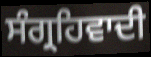
ਸੰਗ੍ਰਹਿਵਾਦੀ